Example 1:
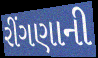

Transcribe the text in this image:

રીંગણાની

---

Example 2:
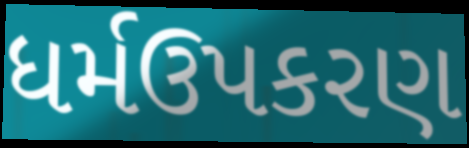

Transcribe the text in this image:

ધર્મઉપકરણ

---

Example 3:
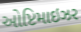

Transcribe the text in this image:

ઓપ્ટિમાઇઝર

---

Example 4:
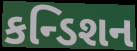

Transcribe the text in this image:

કન્ડિશન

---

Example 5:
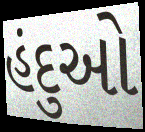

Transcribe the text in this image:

હંદુઓ